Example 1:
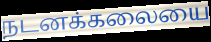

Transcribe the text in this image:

நடனக்கலையை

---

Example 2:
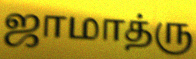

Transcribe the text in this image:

ஜாமாத்ரு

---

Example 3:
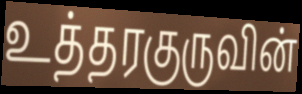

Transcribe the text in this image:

உத்தரகுருவின்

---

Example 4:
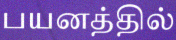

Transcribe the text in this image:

பயனத்தில்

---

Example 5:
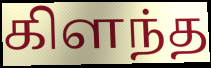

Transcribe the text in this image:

கிளந்த